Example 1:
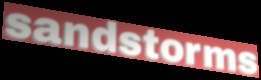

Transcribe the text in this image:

sandstorms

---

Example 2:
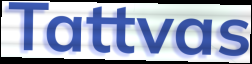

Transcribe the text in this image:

Tattvas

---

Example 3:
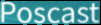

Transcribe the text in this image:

Poscast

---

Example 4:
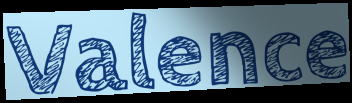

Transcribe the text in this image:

Valence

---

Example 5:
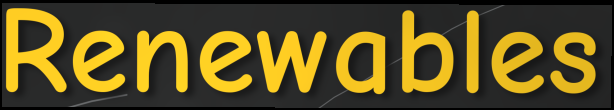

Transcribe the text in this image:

Renewables